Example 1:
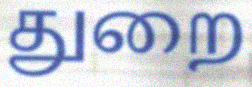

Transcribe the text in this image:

துறை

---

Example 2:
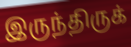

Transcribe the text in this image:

இருந்திருக்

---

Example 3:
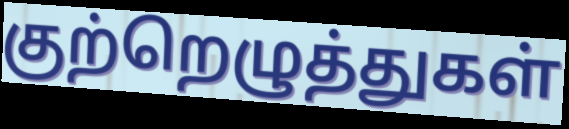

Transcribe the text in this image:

குற்றெழுத்துகள்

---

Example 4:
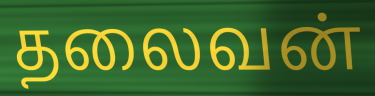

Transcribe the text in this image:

தலைவன்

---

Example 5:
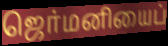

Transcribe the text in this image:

ஜெர்மனியைப்